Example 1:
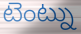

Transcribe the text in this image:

టెంట్ను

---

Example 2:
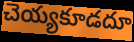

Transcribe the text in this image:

చెయ్యకూడదూ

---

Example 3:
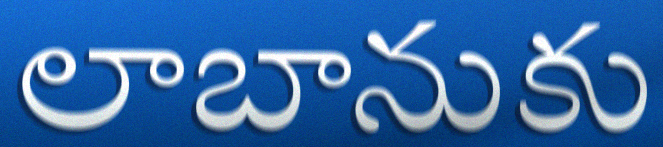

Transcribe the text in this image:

లాబానుకు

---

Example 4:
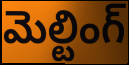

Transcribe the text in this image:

మెల్టింగ్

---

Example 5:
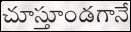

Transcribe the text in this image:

చూస్తూండగానే